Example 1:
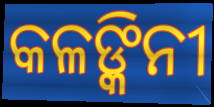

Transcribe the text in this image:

କଳଙ୍କିନୀ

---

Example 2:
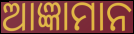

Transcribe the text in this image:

ଆଜ୍ଞାମାନ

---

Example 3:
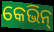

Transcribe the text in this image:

କେଭିନ୍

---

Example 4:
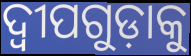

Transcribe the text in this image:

ଦ୍ୱୀପଗୁଡ଼ାକୁ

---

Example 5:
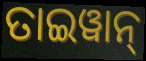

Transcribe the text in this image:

ତାଇୱାନ୍